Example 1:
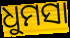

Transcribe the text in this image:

ଧୁମସା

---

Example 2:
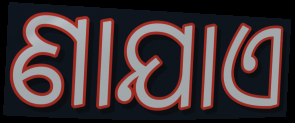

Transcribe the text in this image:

ଣାଯାଏ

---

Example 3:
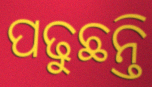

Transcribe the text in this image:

ପଢୁଛନ୍ତି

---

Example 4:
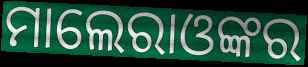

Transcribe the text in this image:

ମାଲେରାଓଙ୍କର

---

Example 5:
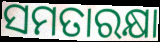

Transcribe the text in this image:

ସମତାରକ୍ଷା